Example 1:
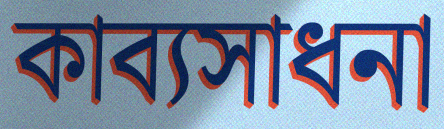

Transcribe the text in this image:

কাব্যসাধনা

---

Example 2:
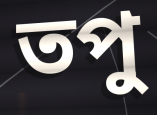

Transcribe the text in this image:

তপু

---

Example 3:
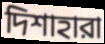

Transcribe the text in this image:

দিশাহারা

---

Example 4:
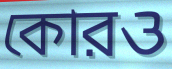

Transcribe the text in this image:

কোরও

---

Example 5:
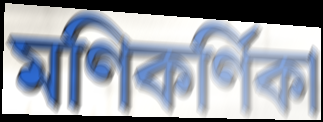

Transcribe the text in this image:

মণিকর্ণিকা